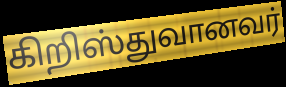
கிறிஸ்துவானவர்